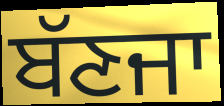
ਬੱਣਜਾ